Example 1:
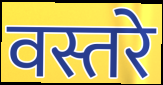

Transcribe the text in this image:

वस्तरे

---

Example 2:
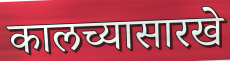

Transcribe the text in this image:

कालच्यासारखे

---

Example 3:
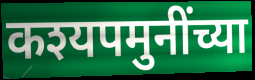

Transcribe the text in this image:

कश्यपमुनींच्या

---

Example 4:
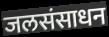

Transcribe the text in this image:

जलसंसाधन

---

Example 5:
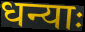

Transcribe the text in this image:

धन्याः